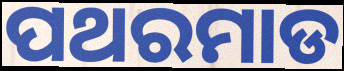
ପଥରମାଡ